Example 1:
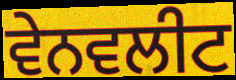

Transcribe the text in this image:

ਵੇਨਵਲੀਟ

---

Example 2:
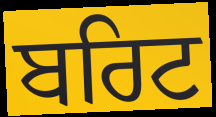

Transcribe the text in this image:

ਬਰਿਟ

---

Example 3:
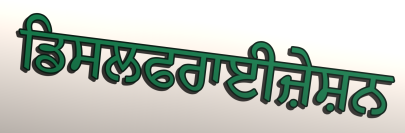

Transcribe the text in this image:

ਡਿਸਲਫਰਾਈਜ਼ੇਸ਼ਨ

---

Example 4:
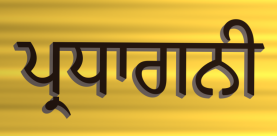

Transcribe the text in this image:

ਪ੍ਰਧਾਗਨੀ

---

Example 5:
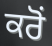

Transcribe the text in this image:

ਕਰੋਂ